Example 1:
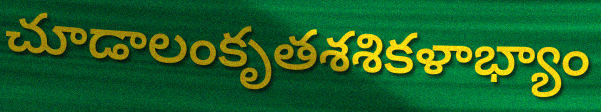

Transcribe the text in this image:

చూడాలంకృతశశికళాభ్యాం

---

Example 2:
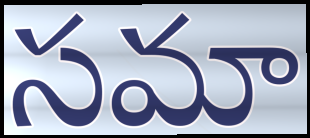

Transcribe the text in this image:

సమా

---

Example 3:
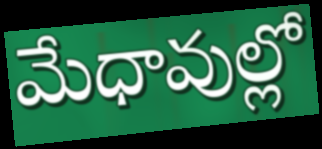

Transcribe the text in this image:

మేధావుల్లో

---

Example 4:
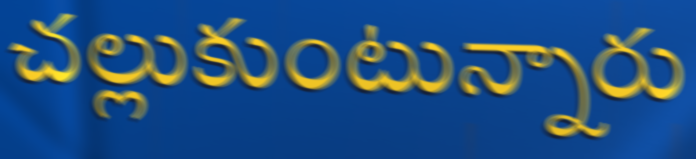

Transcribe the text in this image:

చల్లుకుంటున్నారు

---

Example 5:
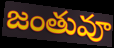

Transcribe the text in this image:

జంతువూ